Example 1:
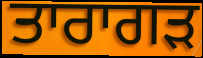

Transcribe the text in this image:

ਤਾਰਾਗੜ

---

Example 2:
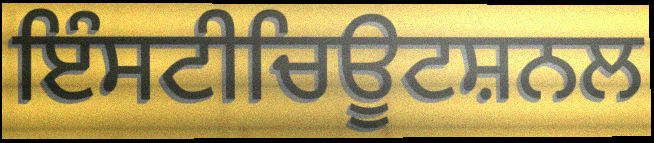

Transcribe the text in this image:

ਇੰਸਟੀਚਿਊਟਸ਼ਨਲ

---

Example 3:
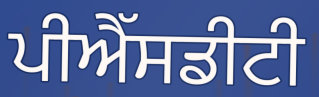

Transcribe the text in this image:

ਪੀਐੱਸਡੀਟੀ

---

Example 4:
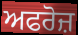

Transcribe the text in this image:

ਅਫਰੋਜ਼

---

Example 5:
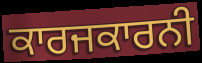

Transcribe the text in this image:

ਕਾਰਜਕਾਰਨੀ